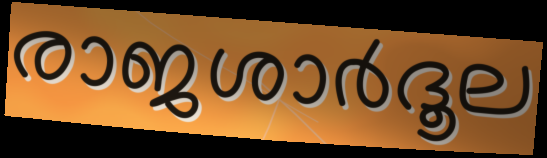
രാജശാർദൂല